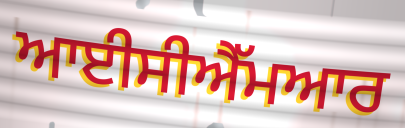
ਆਈਸੀਐੱਮਆਰ